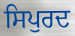
ਸਿਪੁਰਦ